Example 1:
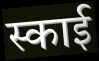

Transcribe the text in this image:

स्काई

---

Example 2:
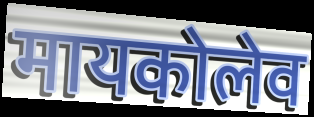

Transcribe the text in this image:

मायकोलेव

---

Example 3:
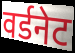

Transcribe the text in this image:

वर्डनेट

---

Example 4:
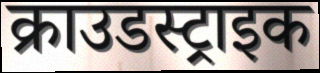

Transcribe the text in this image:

क्राउडस्ट्राइक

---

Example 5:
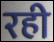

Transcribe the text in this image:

रही